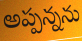
అప్పన్నను